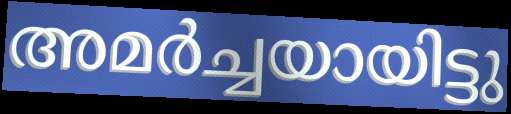
അമർച്ചയായിട്ടു